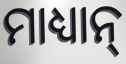
ମାଧ୍ୟାନ୍